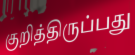
குறித்திருப்பது